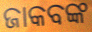
ଜାକବଙ୍କ